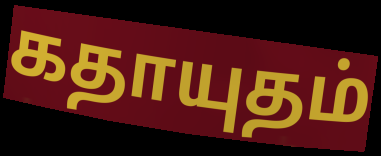
கதாயுதம்